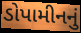
ડોપામીનનું